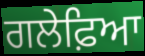
ਗਲੇਫ਼ਿਆ